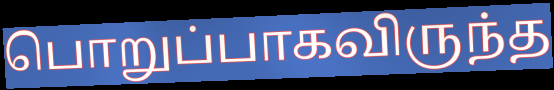
பொறுப்பாகவிருந்த